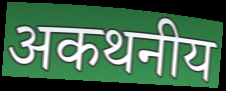
अकथनीय